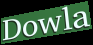
Dowla